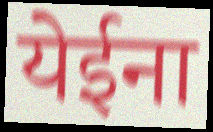
येईना